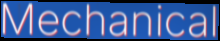
Mechanical